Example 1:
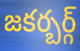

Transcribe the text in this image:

జకర్బర్గ్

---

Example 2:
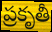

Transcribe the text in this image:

ప్రకృతీ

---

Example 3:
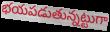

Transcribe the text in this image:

భయపడుతున్నట్టుగా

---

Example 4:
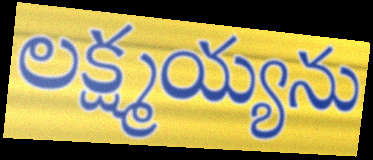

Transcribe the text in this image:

లక్ష్మయ్యను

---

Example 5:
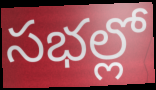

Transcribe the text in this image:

సభల్లో